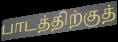
பாடத்திற்குத்